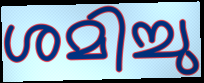
ശമിച്ചു